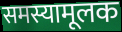
समस्यामूलक